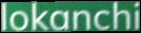
lokanchi